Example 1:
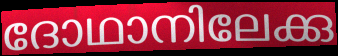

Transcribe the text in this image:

ദോഥാനിലേക്കു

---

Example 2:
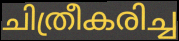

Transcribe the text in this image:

ചിത്രീകരിച്ച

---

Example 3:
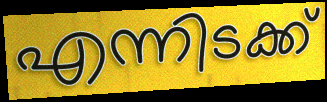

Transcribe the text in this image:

എന്നിടക്ക്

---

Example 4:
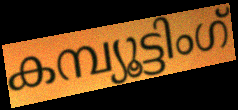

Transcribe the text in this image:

കമ്പ്യൂട്ടിംഗ്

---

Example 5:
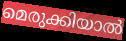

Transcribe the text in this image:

മെരുക്കിയാൽ